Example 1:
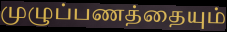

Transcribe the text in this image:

முழுப்பணத்தையும்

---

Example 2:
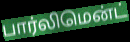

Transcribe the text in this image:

பார்லிமென்ட்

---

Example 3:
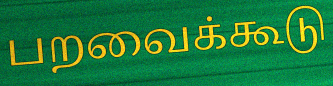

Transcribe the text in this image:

பறவைக்கூடு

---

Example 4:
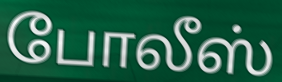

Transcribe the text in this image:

போலீஸ்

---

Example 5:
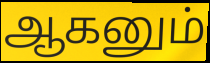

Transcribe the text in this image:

ஆகனும்